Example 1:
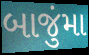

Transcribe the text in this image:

બાજુંમા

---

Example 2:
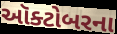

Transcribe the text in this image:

ઑક્ટોબરના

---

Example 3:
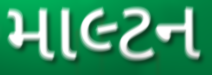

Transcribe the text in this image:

માલ્ટન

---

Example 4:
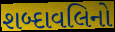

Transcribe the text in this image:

શબ્દાવલિનો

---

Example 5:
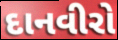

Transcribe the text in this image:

દાનવીરો